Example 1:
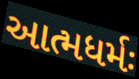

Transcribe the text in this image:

આત્મધર્મઃ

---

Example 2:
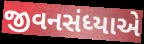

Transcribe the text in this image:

જીવનસંધ્યાએ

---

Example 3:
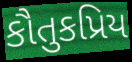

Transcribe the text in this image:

કૌતુકપ્રિય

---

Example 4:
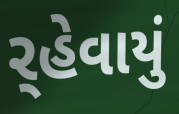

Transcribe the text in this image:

ર્‌હેવાયું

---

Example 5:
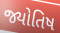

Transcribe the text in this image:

જ્યોતિષ